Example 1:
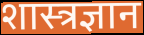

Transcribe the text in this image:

शास्त्रज्ञान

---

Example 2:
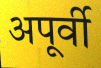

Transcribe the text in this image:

अपूर्वी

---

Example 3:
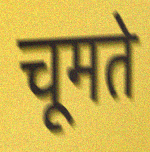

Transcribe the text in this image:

चूमते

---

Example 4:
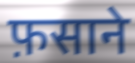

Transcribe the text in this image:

फ़साने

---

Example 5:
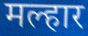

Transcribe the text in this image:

मल्हार